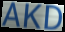
AKD